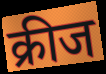
क्रीज